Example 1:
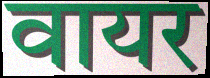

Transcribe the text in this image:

वायर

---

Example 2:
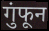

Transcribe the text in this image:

गुंफून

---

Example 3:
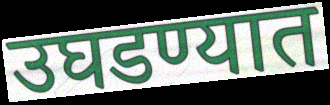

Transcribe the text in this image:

उघडण्यात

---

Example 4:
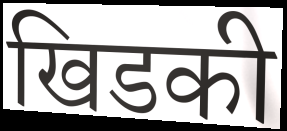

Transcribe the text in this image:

खिडकी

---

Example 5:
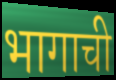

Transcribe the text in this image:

भागाची